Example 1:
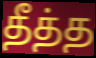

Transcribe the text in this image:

தீத்த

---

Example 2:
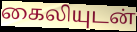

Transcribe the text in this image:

கைலியுடன்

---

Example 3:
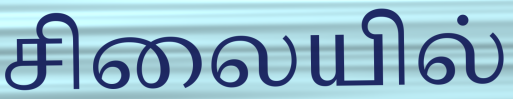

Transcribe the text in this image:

சிலையில்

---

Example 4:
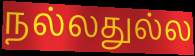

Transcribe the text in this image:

நல்லதுல்ல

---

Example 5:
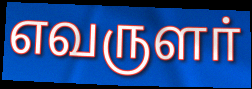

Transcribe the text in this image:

எவருளர்